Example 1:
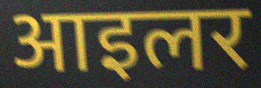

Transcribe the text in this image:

आइलर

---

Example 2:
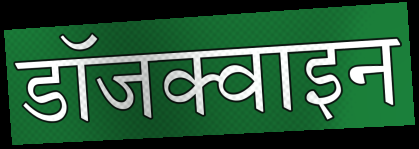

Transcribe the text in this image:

डॉजक्वाइन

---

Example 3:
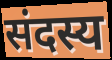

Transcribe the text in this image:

संदस्य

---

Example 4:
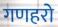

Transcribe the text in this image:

गणहरो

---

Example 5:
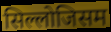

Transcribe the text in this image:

सिल्लोजिसम